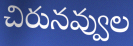
చిరునవ్వుల